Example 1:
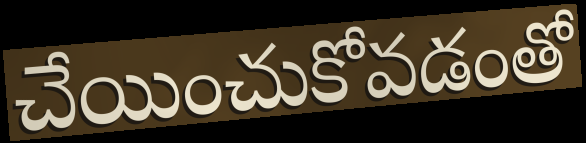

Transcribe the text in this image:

చేయించుకోవడంతో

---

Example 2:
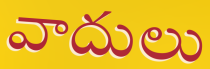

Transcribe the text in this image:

వాదులు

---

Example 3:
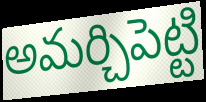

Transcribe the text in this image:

అమర్చిపెట్టి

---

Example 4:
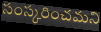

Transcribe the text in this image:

సంస్కరించమని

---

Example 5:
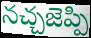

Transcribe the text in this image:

నచ్చజెప్పి